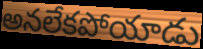
అనలేకపోయాడు